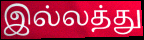
இல்லத்து